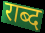
राब्द